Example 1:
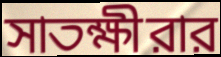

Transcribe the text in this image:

সাতক্ষীরার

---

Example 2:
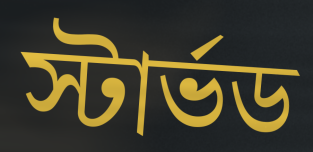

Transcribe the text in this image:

স্টার্ভড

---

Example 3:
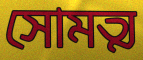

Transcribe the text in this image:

সোমত্ম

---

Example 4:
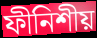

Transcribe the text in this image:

ফীনিশীয়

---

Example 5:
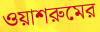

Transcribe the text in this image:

ওয়াশরুমের